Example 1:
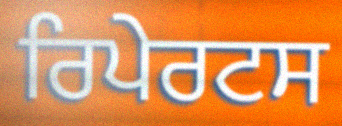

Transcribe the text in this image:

ਰਿਪੇਰਟਸ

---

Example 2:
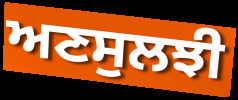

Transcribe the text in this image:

ਅਣਸੁਲਝੀ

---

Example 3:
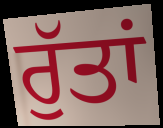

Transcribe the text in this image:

ਰੁੱਤਾਂ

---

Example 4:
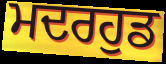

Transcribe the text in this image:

ਮਦਰਹੁਡ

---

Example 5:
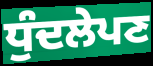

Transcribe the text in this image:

ਧੁੰਦਲੇਪਣ